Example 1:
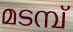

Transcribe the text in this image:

മടമ്പ്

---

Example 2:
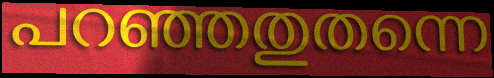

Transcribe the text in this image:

പറഞ്ഞതുതന്നെ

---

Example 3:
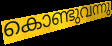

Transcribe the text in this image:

കൊണ്ടുവന്നു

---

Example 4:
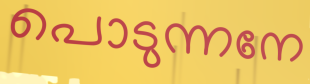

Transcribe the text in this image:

പൊടുന്നനേ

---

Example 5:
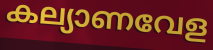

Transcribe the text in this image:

കല്യാണവേള